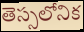
తెస్సలోనిక